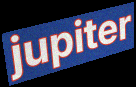
jupiter